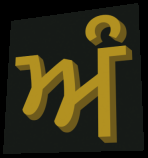
ਅੰ